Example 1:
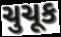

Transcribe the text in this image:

ચુચૂક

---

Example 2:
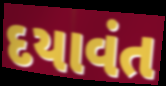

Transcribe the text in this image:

દયાવંત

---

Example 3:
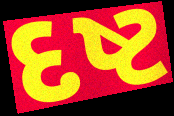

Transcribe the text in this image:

દષ્ટ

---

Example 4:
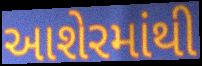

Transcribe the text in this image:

આશેરમાંથી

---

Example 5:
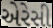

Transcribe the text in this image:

એરેસી